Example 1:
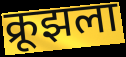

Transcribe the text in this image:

क्रूझला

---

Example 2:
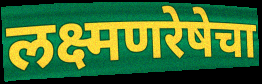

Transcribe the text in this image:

लक्ष्मणरेषेचा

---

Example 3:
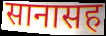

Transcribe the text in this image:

सानासह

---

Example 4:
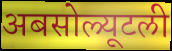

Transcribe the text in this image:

अबसोल्यूटली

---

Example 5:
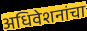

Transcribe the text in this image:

अधिवेशनांचा